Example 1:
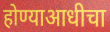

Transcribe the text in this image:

होण्याआधीचा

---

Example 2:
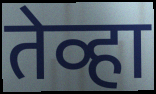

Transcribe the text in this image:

तेव्हा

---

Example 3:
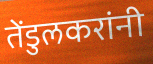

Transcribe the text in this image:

तेंडुलकरांनी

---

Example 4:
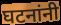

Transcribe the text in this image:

घटनांनी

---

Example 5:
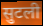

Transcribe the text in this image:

सुटली